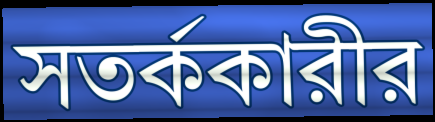
সতর্ককারীর